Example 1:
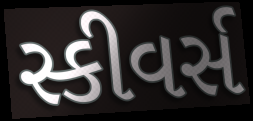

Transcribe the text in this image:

સ્કીવર્સ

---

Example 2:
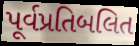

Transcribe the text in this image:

પૂર્વપ્રતિબલિત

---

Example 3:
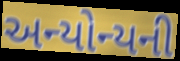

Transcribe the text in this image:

અન્યોન્યની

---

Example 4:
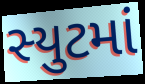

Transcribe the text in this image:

સ્યુટમાં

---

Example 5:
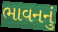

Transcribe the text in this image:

ભાવનનું